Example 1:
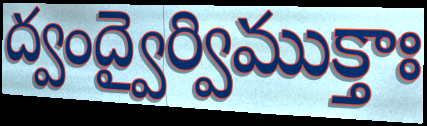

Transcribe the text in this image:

ద్వంద్వైర్విముక్తాః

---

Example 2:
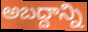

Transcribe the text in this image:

అబద్దాన్ని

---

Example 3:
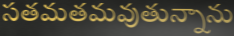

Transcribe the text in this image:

సతమతమవుతున్నాను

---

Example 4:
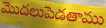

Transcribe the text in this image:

మొదలుపెడతాము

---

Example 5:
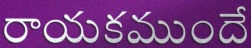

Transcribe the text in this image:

రాయకముందే